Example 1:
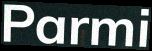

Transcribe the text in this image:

Parmi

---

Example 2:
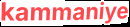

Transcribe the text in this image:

kammaniye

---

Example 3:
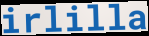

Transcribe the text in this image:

irlilla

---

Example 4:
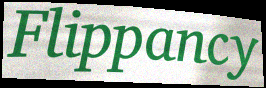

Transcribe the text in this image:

Flippancy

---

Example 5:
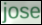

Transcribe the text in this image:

jose